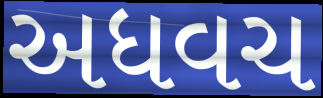
અધવચ